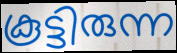
കൂട്ടിരുന്ന